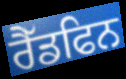
ਰੈੱਡਫਿਨ